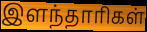
இளந்தாரிகள்